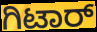
ಗಿಟಾರ್